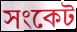
সংকেট